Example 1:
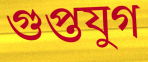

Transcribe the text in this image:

গুপ্তযুগ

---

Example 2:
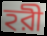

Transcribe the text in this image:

হরী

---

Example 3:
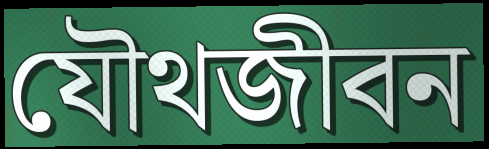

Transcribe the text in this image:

যৌথজীবন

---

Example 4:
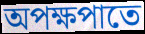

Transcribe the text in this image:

অপক্ষপাতে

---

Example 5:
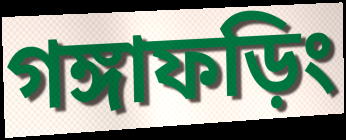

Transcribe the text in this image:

গঙ্গাফড়িং